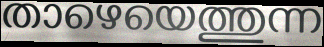
താഴെയെത്തുന്ന